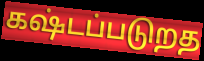
கஷ்டப்படுறத